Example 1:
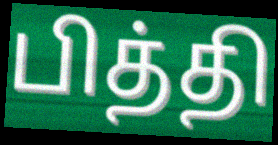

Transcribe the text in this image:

பித்தி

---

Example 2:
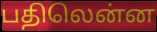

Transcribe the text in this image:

பதிலென்ன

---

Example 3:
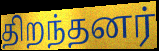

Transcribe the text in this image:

திறந்தனர்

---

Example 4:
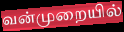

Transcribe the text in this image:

வன்முறையில்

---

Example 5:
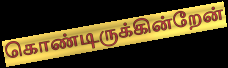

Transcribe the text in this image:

கொண்டிருக்கின்றேன்